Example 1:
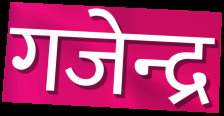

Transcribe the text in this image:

गजेन्‍द्र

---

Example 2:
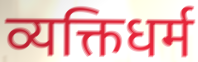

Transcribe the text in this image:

व्यक्तिधर्म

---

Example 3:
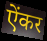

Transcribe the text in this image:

ऐंकर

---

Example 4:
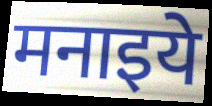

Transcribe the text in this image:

मनाइये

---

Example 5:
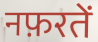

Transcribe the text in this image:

नफ़रतें